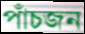
পাঁচজন